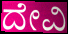
ದೇವಿ